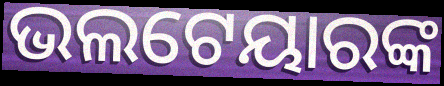
ଭଲଟେୟାରଙ୍କ